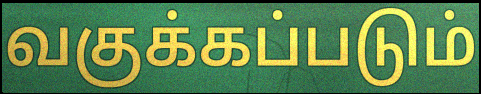
வகுக்கப்படும்